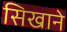
सिखाने